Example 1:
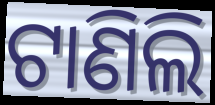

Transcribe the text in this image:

ଟାଣିଲି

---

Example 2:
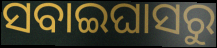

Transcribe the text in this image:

ସବାଇଘାସରୁ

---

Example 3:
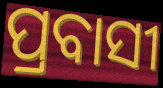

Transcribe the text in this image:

ପ୍ରବାସୀ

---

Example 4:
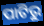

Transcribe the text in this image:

ପାଟିରୁ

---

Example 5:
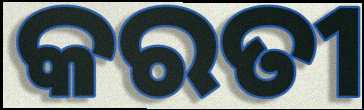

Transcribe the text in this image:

କରତୀ